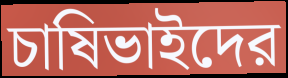
চাষিভাইদের